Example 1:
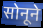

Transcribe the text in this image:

सोनूने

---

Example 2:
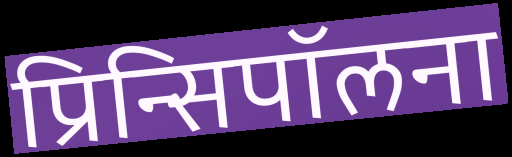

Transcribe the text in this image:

प्रिन्सिपॉलना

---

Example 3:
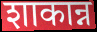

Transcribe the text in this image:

शाकान्न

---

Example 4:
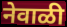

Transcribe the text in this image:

नेवाळी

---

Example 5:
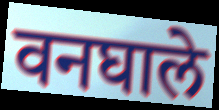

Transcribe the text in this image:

वनघाले